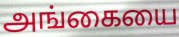
அங்கையை